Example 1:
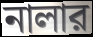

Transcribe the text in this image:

নালার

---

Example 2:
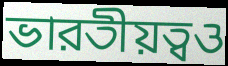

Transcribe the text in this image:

ভারতীয়ত্বও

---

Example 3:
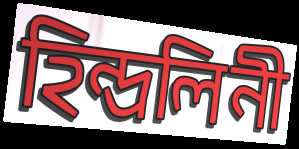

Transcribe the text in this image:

হিন্দ্রলিনী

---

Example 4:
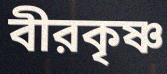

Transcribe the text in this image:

বীরকৃষ্ণ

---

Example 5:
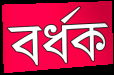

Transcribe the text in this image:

বর্ধক